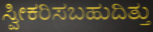
ಸ್ವೀಕರಿಸಬಹುದಿತ್ತು